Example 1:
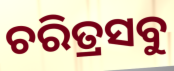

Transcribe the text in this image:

ଚରିତ୍ରସବୁ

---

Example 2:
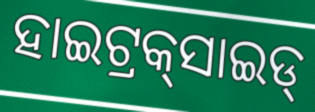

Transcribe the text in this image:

ହାଇଟ୍ରକ୍‌ସାଇଡ୍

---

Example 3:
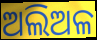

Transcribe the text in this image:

ଅଲିଅଳ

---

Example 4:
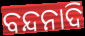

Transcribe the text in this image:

ବନ୍ଦନାଦି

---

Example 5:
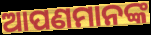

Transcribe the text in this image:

ଆପଣମାନଙ୍କ